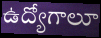
ఉద్యోగాలూ